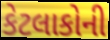
કેટલાકોની